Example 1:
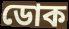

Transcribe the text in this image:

ডোক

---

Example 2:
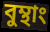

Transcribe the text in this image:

বুম্থাং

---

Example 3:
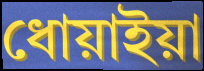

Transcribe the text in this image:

ধোয়াইয়া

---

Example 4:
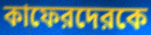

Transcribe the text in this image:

কাফেরদেরকে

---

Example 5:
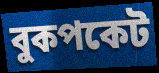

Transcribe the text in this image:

বুকপকেট